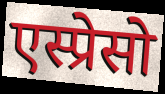
एस्प्रेसो